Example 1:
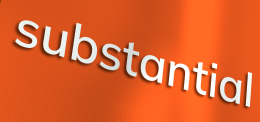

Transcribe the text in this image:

substantial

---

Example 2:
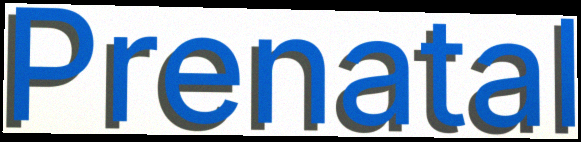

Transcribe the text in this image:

Prenatal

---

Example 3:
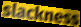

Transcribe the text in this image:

slackness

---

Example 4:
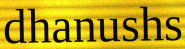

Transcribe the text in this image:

dhanushs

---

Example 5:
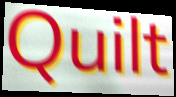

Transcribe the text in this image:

Quilt